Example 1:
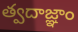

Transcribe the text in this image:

త్వదాజ్ఞాం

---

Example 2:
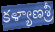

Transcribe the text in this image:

కళ్యాణశ్రీ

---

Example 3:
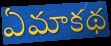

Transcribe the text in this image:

ఏమాకథ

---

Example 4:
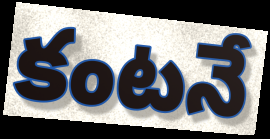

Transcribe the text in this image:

కంటనే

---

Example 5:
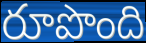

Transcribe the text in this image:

రూపొంది